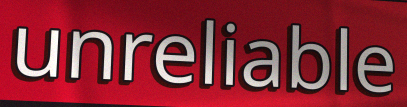
unreliable